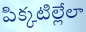
పిక్కటిల్లేలా